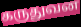
கருதுவன